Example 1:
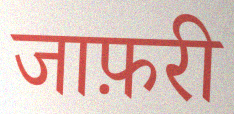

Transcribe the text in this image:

जाफ़री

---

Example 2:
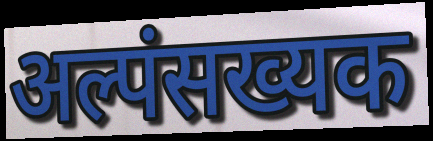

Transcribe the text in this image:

अल्पंसख्यक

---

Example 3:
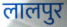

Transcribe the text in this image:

लालपुर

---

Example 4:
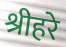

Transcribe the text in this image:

श्रीहरे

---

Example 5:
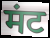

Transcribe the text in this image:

मंट